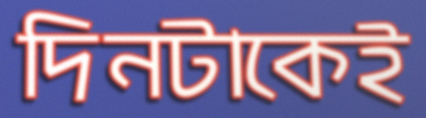
দিনটাকেই